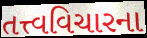
તત્ત્વવિચારના